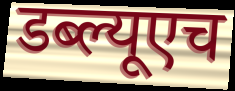
डब्ल्यूएच